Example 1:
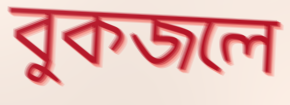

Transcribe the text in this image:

বুকজলে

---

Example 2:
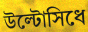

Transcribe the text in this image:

উল্টোসিধে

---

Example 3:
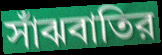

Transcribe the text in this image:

সাঁঝবাতির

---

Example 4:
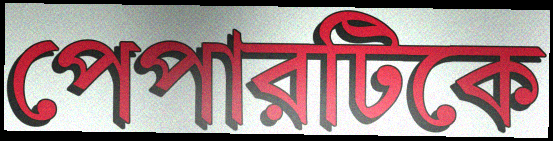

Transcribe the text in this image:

পেপারটিকে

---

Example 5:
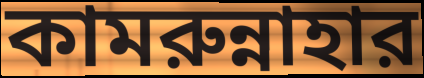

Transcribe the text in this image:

কামরুন্নাহার